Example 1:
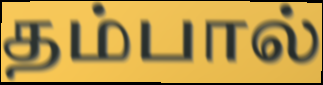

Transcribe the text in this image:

தம்பால்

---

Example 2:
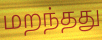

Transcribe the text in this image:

மறந்தது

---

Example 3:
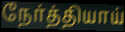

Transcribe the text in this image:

நேர்த்தியாய்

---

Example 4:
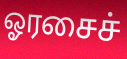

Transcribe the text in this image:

ஓரசைச்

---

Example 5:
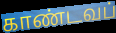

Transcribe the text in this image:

காண்டவப்